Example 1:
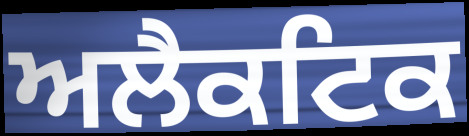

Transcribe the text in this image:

ਅਲੈਕਟਿਕ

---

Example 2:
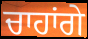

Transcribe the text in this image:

ਚਾਹਾਂਗੇ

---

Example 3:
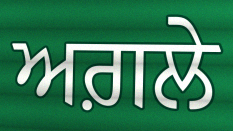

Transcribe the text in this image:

ਅਗ਼ਲੇ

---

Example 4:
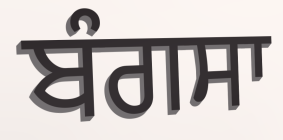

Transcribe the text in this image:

ਬੰਗਸਾ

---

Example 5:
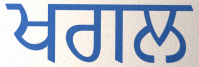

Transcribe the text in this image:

ਖਗਲ